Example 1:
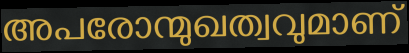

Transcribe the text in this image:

അപരോന്മുഖത്വവുമാണ്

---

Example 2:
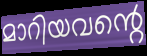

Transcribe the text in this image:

മാറിയവന്റെ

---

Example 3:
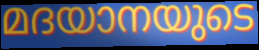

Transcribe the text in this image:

മദയാനയുടെ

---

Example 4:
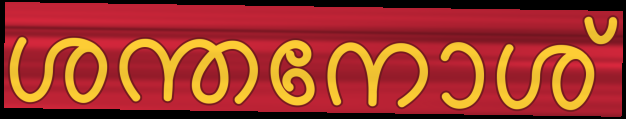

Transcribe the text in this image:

ശന്തനോശ്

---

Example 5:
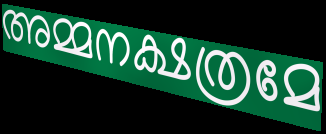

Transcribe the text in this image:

അമ്മനക്ഷത്രമേ